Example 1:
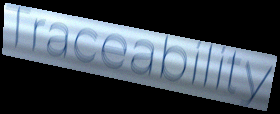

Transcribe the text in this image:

Traceability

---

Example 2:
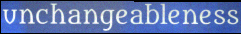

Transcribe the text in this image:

unchangeableness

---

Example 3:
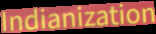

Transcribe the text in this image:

Indianization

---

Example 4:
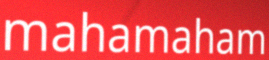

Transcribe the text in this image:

mahamaham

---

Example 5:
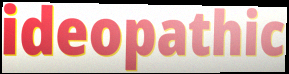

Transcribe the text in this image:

ideopathic